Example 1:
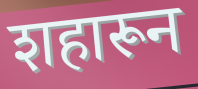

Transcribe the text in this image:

शहारून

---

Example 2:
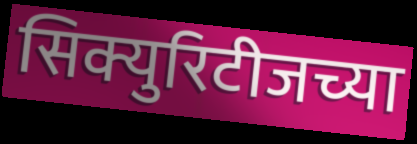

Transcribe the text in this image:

सिक्युरिटीजच्या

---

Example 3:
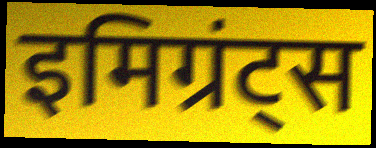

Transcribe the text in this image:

इमिग्रंट्स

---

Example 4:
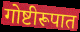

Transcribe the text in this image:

गोष्टीरूपात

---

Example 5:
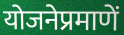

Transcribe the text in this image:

योजनेप्रमाणें